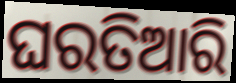
ଘରତିଆରି